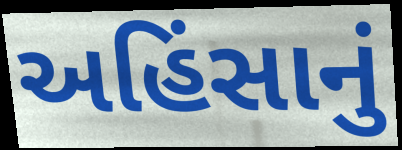
અહિંસાનું